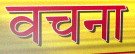
वचना